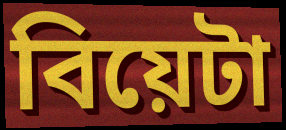
বিয়েটা